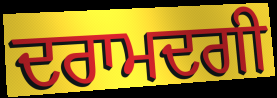
ਦਰਾਮਦਗੀ